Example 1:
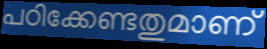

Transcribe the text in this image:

പഠിക്കേണ്ടതുമാണ്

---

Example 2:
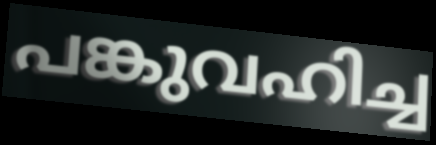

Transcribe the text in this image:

പങ്കുവഹിച്ച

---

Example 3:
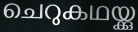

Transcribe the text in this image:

ചെറുകഥയ്ക്കു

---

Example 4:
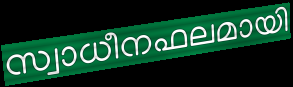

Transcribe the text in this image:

സ്വാധീനഫലമായി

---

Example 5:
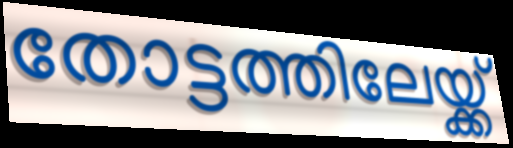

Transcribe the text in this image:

തോട്ടത്തിലേയ്ക്ക്